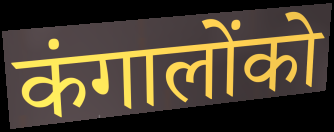
कंगालोंको